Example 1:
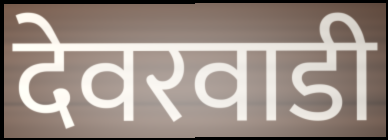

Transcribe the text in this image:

देवरवाडी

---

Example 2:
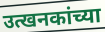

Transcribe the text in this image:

उत्खनकांच्या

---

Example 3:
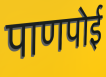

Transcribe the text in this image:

पाणपोई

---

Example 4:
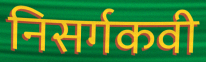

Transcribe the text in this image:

निसर्गकवी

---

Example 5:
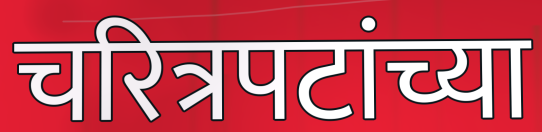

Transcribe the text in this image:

चरित्रपटांच्या